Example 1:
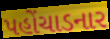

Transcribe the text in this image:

પહોંચાડનાર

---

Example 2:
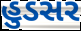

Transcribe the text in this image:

હુડસર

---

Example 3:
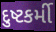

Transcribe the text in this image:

દુષ્ટકર્મી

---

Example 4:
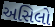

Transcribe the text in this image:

અસિલો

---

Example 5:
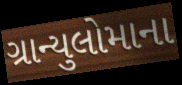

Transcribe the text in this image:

ગ્રાન્યુલોમાના